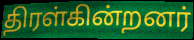
திரள்கின்றனர்